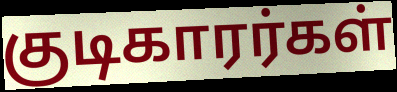
குடிகாரர்கள்